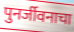
पुनर्जीवनाचा